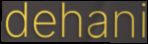
dehani